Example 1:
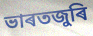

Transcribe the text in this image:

ভাৰতজুৰি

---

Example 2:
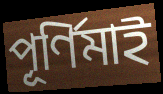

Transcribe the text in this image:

পূৰ্ণিমাই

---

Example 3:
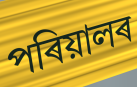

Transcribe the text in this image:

পৰিয়ালৰ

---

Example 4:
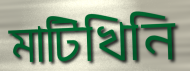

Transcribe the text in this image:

মাটিখিনি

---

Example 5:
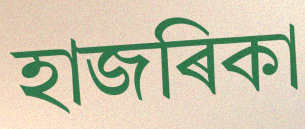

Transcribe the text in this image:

হাজৰিকা